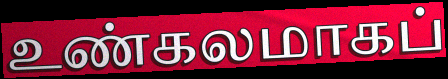
உண்கலமாகப்